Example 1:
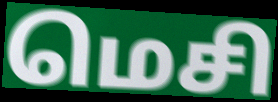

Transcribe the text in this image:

மெசி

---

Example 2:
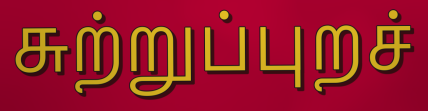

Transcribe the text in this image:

சுற்றுப்புறச்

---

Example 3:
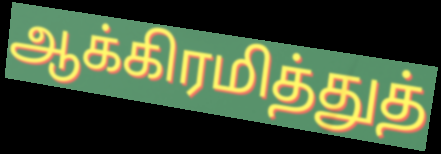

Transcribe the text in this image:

ஆக்கிரமித்துத்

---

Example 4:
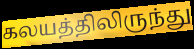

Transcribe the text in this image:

கலயத்திலிருந்து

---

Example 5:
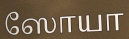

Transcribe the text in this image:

ஸோயா